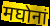
मघोनां